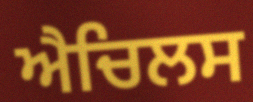
ਐਚਿਲਸ